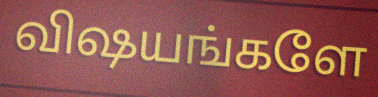
விஷயங்களே